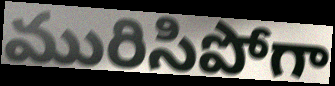
మురిసిపోగా